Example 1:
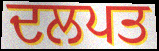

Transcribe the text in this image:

ਦਲਪਤ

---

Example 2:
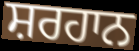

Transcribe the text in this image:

ਸ਼ਰਹਾਨ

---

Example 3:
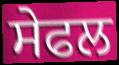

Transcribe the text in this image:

ਸੇਫਲ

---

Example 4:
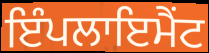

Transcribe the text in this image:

ਇੰਪਲਾਇਮੈਂਟ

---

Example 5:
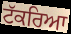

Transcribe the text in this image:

ਟੱਕਰਿਆ